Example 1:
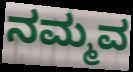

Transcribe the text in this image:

ನಮ್ಮವ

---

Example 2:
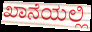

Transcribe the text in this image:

ಖಾನೆಯಲ್ಲಿ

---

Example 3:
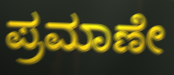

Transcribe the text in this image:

ಪ್ರಮಾಣೇ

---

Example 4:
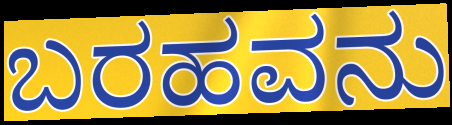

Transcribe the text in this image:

ಬರಹವನು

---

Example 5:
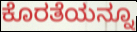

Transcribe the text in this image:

ಕೊರತೆಯನ್ನೂ